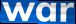
war